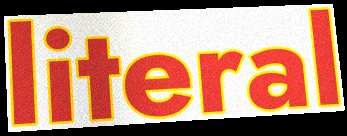
literal